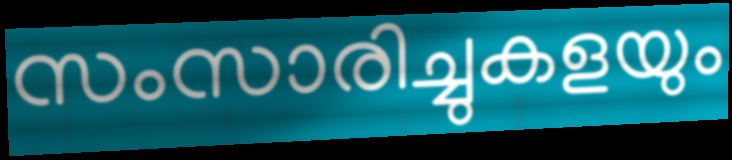
സംസാരിച്ചുകളയും